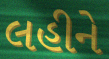
લહીને